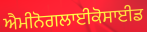
ਐਮੀਨੋਗਲਾਈਕੋਸਾਈਡ